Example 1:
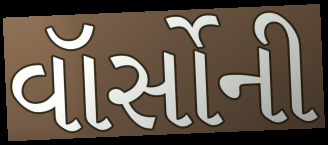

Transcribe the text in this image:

વૉર્સોની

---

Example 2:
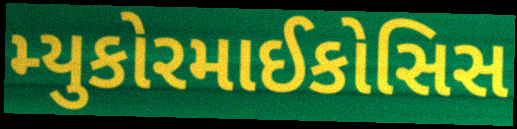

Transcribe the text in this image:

મ્યુકોરમાઈકોસિસ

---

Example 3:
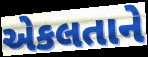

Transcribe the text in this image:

એકલતાને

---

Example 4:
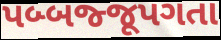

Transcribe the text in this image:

પબ્બજ્જૂપગતા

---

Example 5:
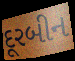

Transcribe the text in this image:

દૂરબીન